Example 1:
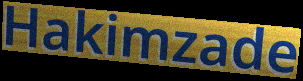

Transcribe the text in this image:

Hakimzade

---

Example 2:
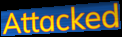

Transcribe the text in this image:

Attacked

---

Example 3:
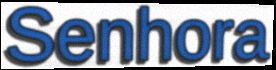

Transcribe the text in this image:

Senhora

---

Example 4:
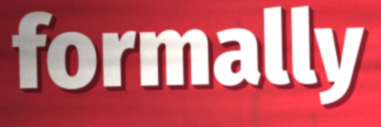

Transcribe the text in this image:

formally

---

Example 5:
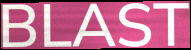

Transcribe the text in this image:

BLAST